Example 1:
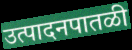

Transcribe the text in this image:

उत्पादनपातळी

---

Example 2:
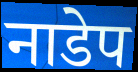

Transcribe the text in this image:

नाडेप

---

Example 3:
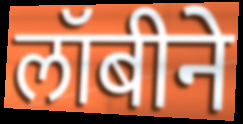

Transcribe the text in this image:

लॉबीने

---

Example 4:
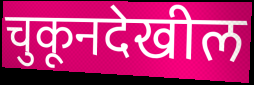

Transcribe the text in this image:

चुकूनदेखील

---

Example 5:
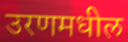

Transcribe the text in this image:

उरणमधील